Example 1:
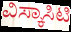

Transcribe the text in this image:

ವಿಸ್ಕಾಸಿಟಿ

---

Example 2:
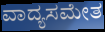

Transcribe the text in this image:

ವಾದ್ಯಸಮೇತ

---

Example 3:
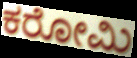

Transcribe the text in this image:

ಕರೋಮಿ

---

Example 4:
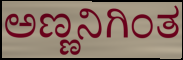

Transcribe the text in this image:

ಅಣ್ಣನಿಗಿಂತ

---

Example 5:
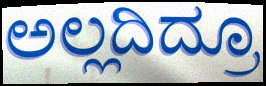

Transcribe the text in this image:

ಅಲ್ಲದಿದ್ರೂ